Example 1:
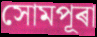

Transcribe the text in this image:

সোমপূৰা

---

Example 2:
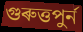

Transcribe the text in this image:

গুৰুত্তপুৰ্ন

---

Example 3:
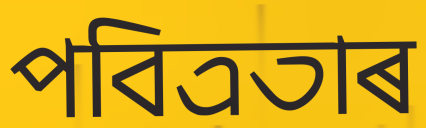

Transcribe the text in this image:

পবিত্ৰতাৰ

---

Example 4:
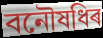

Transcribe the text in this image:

বনৌষধিৰ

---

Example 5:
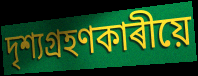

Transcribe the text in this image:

দৃশ্যগ্ৰহণকাৰীয়ে